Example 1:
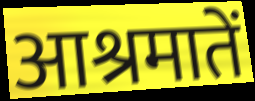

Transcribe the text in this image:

आश्रमातें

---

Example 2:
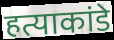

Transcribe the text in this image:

हत्याकांडे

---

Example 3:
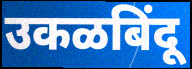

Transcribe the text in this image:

उकळबिंदू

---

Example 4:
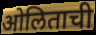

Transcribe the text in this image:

ओलिताची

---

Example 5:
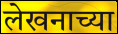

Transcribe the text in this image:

लेखनाच्या